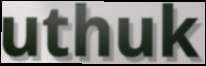
uthuk